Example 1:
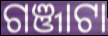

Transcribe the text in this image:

ଗଞ୍ଜାଟା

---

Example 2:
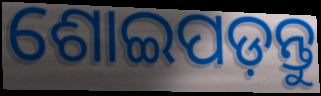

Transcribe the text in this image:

ଶୋଇପଡ଼ନ୍ତୁ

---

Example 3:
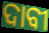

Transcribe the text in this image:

ଦାବୀ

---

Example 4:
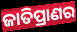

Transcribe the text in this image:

ଜାତିପ୍ରାଣର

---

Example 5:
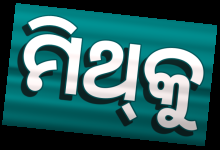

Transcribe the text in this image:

ମିଥ୍‍କୁ